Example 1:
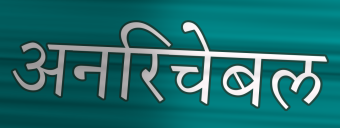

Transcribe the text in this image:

अनरिचेबल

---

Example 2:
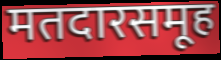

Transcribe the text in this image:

मतदारसमूह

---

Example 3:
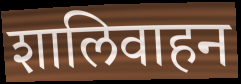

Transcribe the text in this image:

शालिवाहन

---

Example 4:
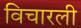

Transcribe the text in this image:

विचारली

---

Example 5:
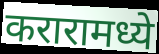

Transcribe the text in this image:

करारामध्ये